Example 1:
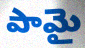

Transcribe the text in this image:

పామై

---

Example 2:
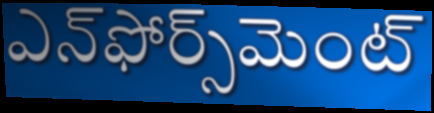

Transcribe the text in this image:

ఎన్‌ఫోర్స్‌మెంట్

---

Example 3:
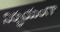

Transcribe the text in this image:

నిర్భయంగా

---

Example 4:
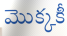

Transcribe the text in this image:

మొక్కకీ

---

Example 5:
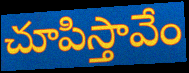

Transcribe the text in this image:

చూపిస్తావేం